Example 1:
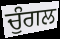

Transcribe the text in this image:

ਚੁੰਗਲ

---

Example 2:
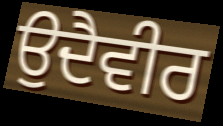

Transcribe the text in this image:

ਉਦੈਵੀਰ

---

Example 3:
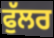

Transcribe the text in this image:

ਫੁੱਲਰ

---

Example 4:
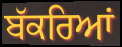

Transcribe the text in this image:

ਬੱਕਰਿਆਂ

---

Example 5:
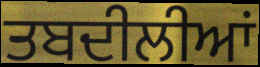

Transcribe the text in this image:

ਤਬਦੀਲੀਆਂ